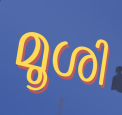
മൂശി